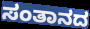
ಸಂತಾನದ